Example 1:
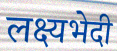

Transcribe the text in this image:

लक्ष्यभेदी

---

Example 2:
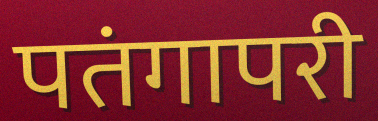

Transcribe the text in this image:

पतंगापरी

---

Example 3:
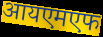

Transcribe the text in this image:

आयएमएफ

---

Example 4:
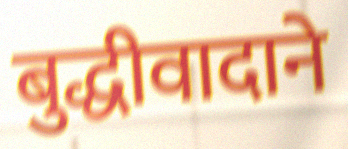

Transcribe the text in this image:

बुद्धीवादाने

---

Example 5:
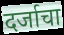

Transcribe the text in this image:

दर्जाचा